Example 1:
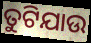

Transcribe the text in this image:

ତୁଟିଯାଉ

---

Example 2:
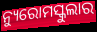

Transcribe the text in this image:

ନ୍ୟୁରୋମସ୍କୁଲାର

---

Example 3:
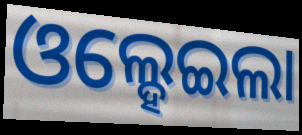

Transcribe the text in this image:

ଓଲ୍ହେଇଲା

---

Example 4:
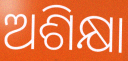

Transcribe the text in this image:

ଅଶିକ୍ଷା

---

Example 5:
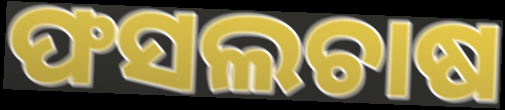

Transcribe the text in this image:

ଫସଲଚାଷ